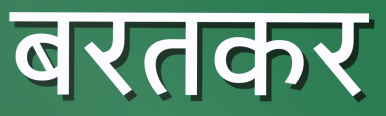
बरतकर